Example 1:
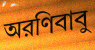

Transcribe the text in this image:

অরণিবাবু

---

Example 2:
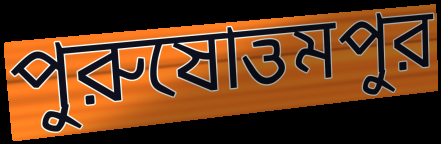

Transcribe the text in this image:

পুরুষোত্তমপুর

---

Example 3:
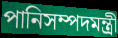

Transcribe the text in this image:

পানিসম্পদমন্ত্রী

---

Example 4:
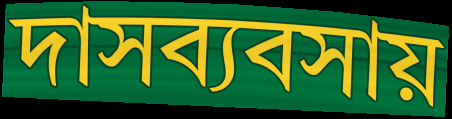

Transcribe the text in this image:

দাসব্যবসায়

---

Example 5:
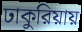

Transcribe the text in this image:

ঢাকুরিয়ায়